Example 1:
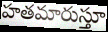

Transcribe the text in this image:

హతమారుస్తూ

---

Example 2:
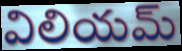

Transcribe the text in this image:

విలియమ్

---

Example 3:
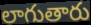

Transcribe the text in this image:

లాగుతారు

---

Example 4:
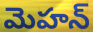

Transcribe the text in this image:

మెహన్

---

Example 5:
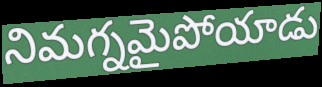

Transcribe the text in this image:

నిమగ్నమైపోయాడు